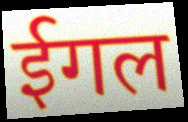
ईगल